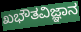
ಖಭೌತವಿಜ್ಞಾನ